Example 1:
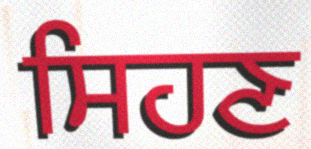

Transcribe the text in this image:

ਸਿਹਣ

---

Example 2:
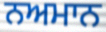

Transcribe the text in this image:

ਨਅਮਾਨ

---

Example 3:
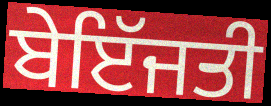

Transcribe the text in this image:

ਬੇਇੱਜਤੀ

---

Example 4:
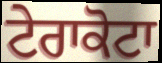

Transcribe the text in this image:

ਟੇਰਾਕੋਟਾ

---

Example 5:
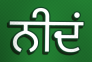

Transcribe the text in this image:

ਨੀਦਂ